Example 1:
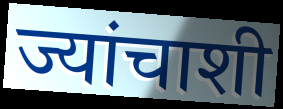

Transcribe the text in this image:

ज्यांचाशी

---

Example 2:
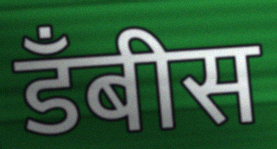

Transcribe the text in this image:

डॅंबीस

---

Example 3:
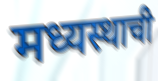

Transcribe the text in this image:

मध्यस्थाची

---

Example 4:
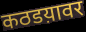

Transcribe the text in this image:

कठडय़ावर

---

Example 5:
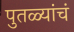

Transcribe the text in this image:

पुतळ्यांचं